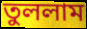
তুললাম